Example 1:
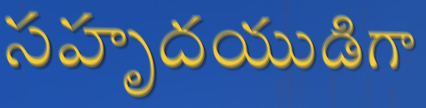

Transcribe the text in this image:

సహృదయుడిగా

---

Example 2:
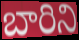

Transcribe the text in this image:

బారిని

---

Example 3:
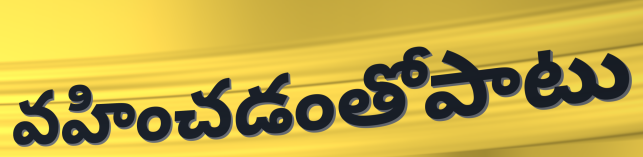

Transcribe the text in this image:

వహించడంతోపాటు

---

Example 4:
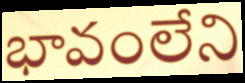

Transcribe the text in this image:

భావంలేని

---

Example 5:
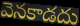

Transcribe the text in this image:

వెనకాడదు